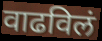
वाढविलं